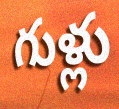
గుళ్లు